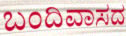
ಬಂದಿವಾಸದ